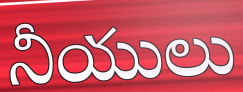
నీయులు